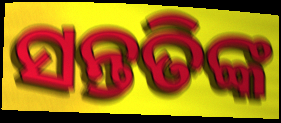
ସନ୍ତତିଙ୍କ